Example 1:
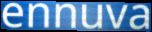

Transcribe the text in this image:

ennuva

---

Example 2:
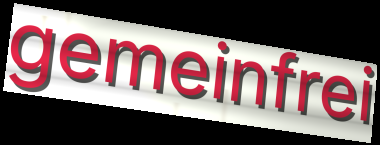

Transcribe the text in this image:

gemeinfrei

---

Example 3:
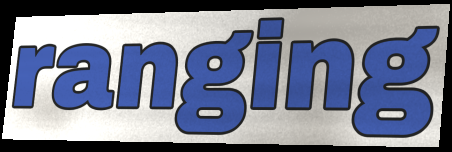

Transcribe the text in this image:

ranging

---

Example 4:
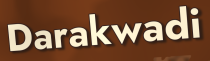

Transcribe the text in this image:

Darakwadi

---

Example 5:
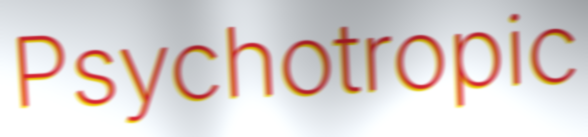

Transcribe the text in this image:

Psychotropic